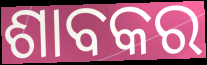
ଶାବକର